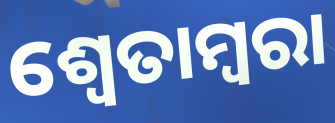
ଶ୍ୱେତାମ୍ବରା